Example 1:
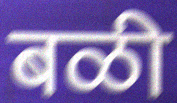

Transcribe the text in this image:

बळी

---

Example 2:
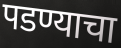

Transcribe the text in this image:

पडण्याचा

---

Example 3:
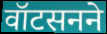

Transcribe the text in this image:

वॉटसनने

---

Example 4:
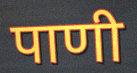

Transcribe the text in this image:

पाणी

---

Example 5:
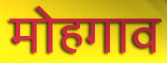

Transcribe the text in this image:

मोहगाव